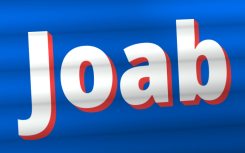
Joab